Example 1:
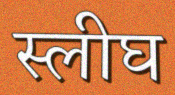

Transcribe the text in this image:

स्लीघ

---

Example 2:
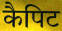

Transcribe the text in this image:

कैपिट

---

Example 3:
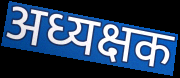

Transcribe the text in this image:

अध्यक्षक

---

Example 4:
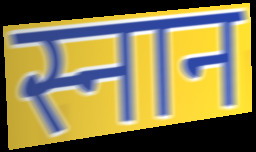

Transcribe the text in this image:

स्‍नान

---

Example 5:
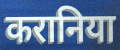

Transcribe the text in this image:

करानिया